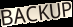
BACKUP